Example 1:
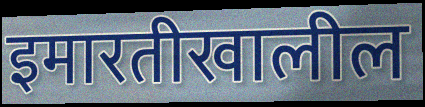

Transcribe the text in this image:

इमारतीखालील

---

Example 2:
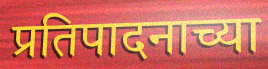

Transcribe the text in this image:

प्रतिपादनाच्या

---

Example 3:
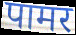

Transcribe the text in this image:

पामर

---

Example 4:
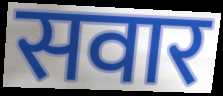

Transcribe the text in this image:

सवार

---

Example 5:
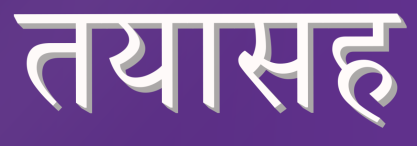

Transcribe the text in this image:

तयासह